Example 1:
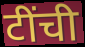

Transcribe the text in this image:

टींची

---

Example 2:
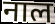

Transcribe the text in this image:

नाल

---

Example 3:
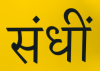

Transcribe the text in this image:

संधीं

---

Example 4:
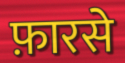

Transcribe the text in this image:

फ़ारसे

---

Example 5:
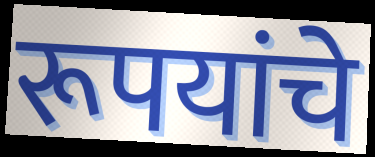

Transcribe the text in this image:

रूपयांचे